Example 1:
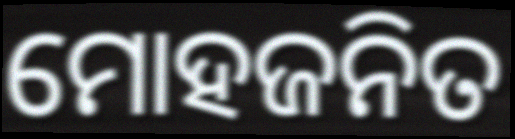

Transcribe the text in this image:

ମୋହଜନିତ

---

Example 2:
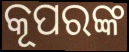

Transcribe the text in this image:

କୂପରଙ୍କ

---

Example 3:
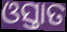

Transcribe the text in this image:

ଓସ୍ତାତ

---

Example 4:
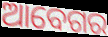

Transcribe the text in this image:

ଆବେଗର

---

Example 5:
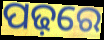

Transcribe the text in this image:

ପଢ଼ରେ